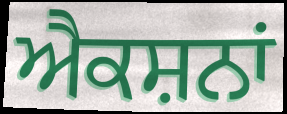
ਐਕਸ਼ਨਾਂ